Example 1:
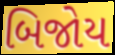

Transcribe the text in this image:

બિજોય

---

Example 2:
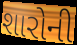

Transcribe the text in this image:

શારોની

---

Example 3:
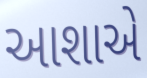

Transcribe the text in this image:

આશાએ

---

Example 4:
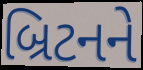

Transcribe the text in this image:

બ્રિટનને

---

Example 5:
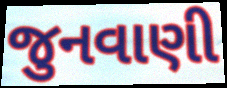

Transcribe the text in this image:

જુનવાણી